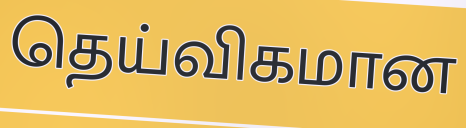
தெய்விகமான